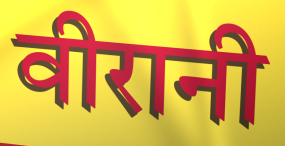
वीरानी